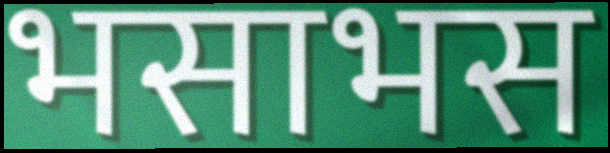
भसाभस